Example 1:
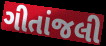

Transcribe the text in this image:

ગીતાંજલી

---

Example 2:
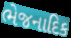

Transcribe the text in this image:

ભેજનાદિક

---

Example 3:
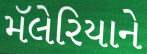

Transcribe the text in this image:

મૅલેરિયાને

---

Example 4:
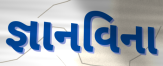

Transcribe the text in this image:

જ્ઞાનવિના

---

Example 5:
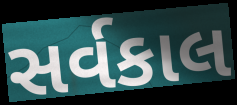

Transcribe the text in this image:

સર્વકાલ